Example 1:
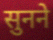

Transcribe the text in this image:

सुनने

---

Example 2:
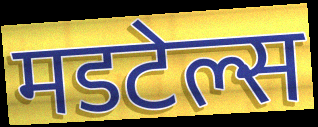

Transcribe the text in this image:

मडटेल्स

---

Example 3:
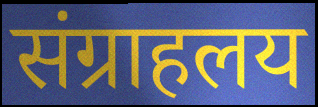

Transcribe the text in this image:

संग्राहलय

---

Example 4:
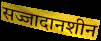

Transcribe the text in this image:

सज्जादानशीन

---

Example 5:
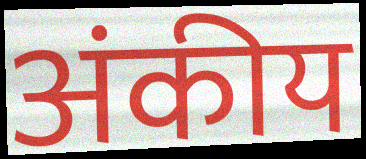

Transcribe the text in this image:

अंकीय